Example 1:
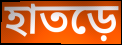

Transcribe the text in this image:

হাতড়ে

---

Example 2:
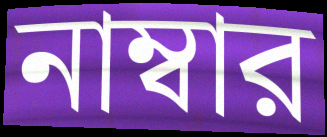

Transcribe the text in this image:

নাম্বার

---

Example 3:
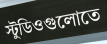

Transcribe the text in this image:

স্টুডিওগুলোতে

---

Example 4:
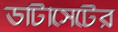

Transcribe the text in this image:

ডাটাসেটের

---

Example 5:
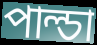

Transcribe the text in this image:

পাল্ডা